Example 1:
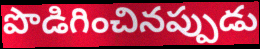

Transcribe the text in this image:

పొడిగించినప్పుడు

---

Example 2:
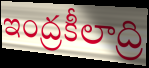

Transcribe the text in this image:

ఇంద్రకీలాద్రి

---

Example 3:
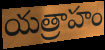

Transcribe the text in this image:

యత్రాహం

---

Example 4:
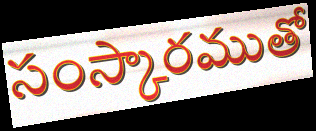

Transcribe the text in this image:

సంస్కారముతో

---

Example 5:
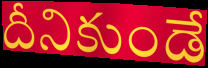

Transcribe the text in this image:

దీనికుండే